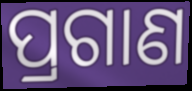
ପ୍ରଗାଣ